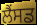
ਲੈਂਸਡ